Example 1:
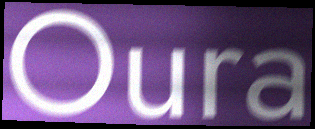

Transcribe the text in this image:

Oura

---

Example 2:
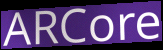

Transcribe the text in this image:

ARCore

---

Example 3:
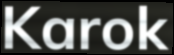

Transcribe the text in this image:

Karok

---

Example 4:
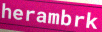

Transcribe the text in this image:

herambrk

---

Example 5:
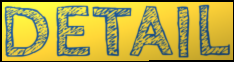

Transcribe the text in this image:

DETAIL